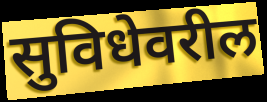
सुविधेवरील